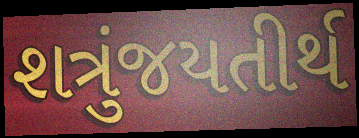
શત્રુંજયતીર્થ